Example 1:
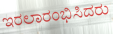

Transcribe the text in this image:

ಇರಲಾರಂಭಿಸಿದರು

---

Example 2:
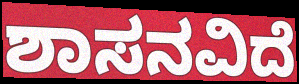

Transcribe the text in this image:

ಶಾಸನವಿದೆ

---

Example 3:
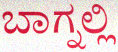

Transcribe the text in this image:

ಬಾಗ್ನಲ್ಲಿ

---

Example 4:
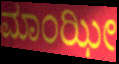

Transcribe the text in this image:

ಮಾಂಝೀ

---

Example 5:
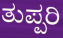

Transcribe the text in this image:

ತುಪ್ಪರಿ